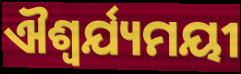
ଐଶ୍ୱର୍ଯ୍ୟମୟୀ